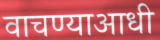
वाचण्याआधी